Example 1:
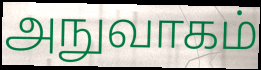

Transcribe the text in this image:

அநுவாகம்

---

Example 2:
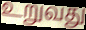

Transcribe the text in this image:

உறுவது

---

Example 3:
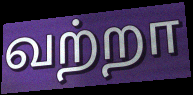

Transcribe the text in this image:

வற்றா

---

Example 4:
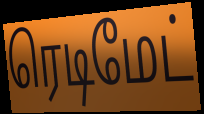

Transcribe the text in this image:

ரெடிமேட்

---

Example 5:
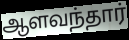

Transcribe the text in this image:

ஆளவந்தார்